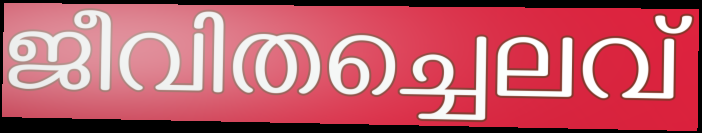
ജീവിതച്ചെലവ്